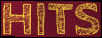
HITS